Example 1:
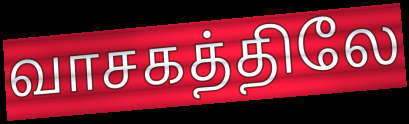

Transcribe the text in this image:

வாசகத்திலே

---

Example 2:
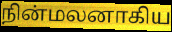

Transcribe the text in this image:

நின்மலனாகிய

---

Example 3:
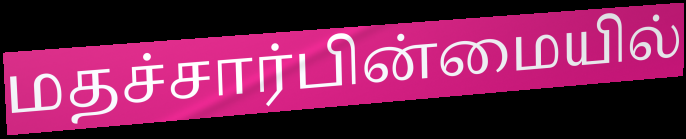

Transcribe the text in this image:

மதச்சார்பின்மையில்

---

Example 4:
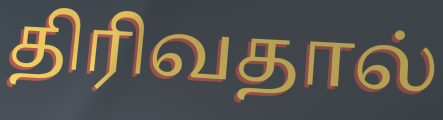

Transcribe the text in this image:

திரிவதால்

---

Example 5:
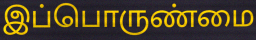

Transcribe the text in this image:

இப்பொருண்மை